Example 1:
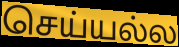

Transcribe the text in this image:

செய்யல்ல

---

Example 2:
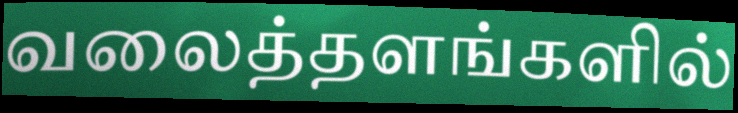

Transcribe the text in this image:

வலைத்தளங்களில்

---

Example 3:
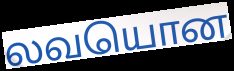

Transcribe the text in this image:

லவயொன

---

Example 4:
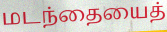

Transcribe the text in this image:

மடந்தையைத்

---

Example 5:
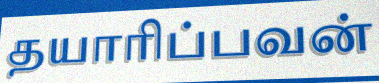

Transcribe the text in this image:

தயாரிப்பவன்